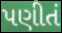
પણીતં